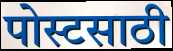
पोस्टसाठी